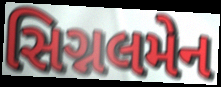
સિગ્નલમેન